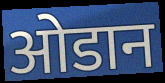
ओडान